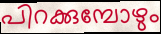
പിറക്കുമ്പോഴും